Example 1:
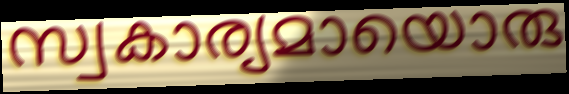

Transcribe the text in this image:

സ്വകാര്യമായൊരു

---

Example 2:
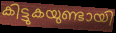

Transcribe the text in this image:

കിട്ടുകയുണ്ടായി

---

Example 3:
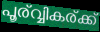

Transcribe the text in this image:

പൂര്വ്വികര്ക്ക്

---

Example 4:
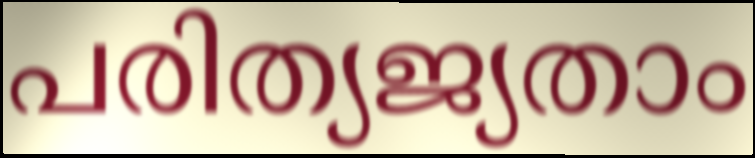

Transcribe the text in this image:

പരിത്യജ്യതാം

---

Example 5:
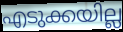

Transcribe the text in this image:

എടുക്കയില്ല